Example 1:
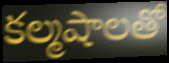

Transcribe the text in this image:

కల్మషాలతో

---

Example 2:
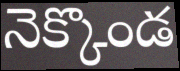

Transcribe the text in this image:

నెక్కొండ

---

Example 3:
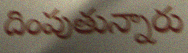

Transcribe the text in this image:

దింపుతున్నారు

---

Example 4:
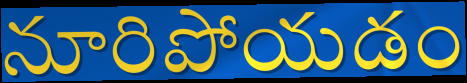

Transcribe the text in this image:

నూరిపోయడం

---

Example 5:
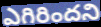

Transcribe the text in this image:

ఎగిరిందని